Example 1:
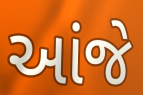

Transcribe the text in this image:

આંજે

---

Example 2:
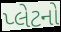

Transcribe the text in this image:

પ્લેટનો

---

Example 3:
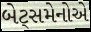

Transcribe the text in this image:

બેટ્સમેનોએ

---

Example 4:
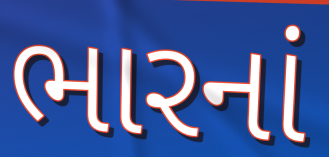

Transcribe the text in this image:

ભારનાં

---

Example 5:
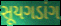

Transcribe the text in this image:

સૂયગડાંગ